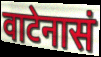
वाटेनासं